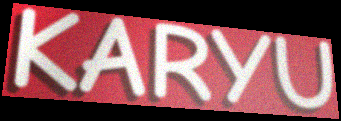
KARYU